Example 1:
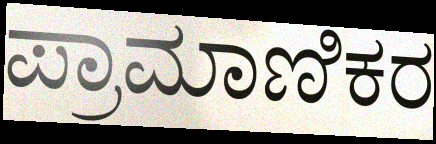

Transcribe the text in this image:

ಪ್ರಾಮಾಣಿಕರ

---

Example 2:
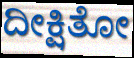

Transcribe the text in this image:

ದೀಕ್ಷಿತೋ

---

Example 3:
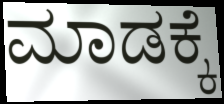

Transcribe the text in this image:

ಮಾಡಕ್ಕೆ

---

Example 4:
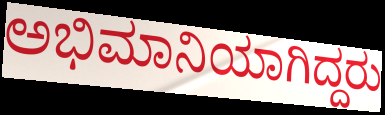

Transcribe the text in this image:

ಅಭಿಮಾನಿಯಾಗಿದ್ದರು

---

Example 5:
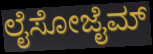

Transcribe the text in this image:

ಲೈಸೋಜೈಮ್